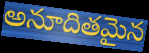
అనూదితమైన